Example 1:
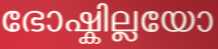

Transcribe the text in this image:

ഭോഷ്കില്ലയോ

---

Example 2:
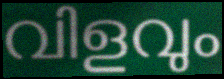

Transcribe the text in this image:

വിളവും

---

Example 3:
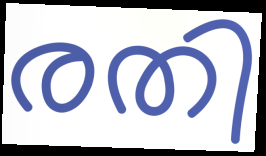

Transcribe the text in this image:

രതി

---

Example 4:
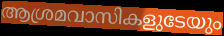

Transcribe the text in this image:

ആശ്രമവാസികളുടേയും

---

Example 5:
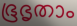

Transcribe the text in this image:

ഭൂഭൃതാം